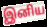
இனிய